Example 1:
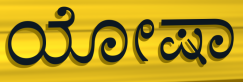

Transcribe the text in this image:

ಯೋಷಾ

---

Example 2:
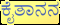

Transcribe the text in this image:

ಕೈತಾನನ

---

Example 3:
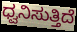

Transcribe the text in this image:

ಧ್ವನಿಸುತ್ತಿದೆ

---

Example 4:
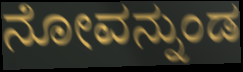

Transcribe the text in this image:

ನೋವನ್ನುಂಡ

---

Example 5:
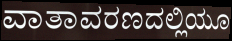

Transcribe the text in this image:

ವಾತಾವರಣದಲ್ಲಿಯೂ